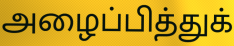
அழைப்பித்துக்